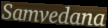
Samvedana